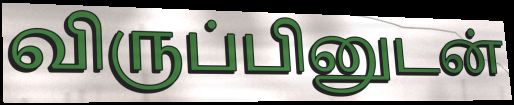
விருப்பினுடன்